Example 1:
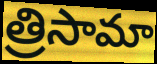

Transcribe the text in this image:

త్రిసామా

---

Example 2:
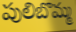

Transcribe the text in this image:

పులిబొమ్మ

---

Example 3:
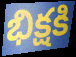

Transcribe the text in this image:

భిక్షకి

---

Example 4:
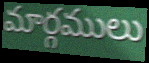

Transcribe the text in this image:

మార్గములు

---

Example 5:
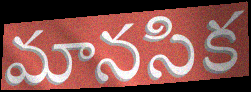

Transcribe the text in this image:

మానసిక